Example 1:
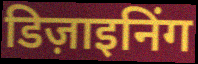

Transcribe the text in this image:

डिज़ाइनिंग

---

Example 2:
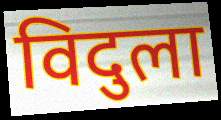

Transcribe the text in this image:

विदुला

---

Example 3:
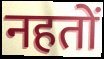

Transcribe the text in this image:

नहतों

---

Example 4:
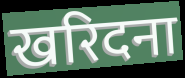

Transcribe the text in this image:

खरिदना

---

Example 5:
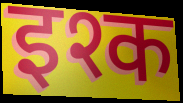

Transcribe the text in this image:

इश्क